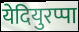
येदियुरप्पा